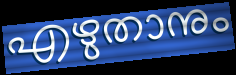
എഴുതാനും